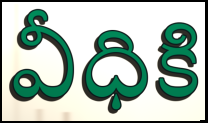
వీధికి